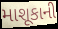
માશૂકાની